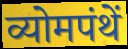
व्योमपंथें